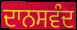
ਦਾਨਸਵੰਦ